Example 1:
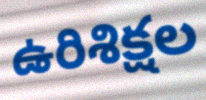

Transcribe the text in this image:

ఉరిశిక్షల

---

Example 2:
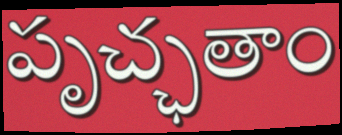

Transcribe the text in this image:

పృచ్ఛతాం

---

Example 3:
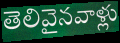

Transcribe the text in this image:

తెలివైనవాళ్లు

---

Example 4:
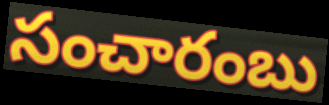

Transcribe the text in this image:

సంచారంబు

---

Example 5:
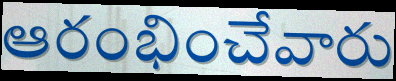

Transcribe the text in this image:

ఆరంభించేవారు